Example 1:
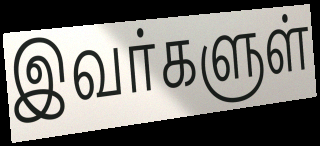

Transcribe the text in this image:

இவர்களுள்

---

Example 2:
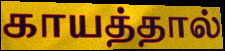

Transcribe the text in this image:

காயத்தால்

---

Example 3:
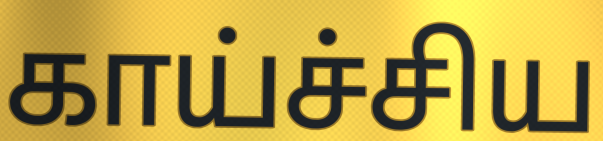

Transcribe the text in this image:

காய்ச்சிய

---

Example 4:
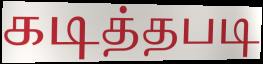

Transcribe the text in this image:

கடித்தபடி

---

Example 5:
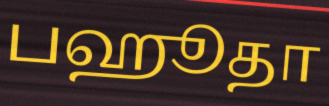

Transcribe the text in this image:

பஹூதா